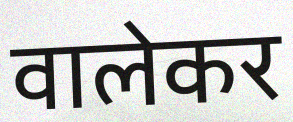
वालेकर